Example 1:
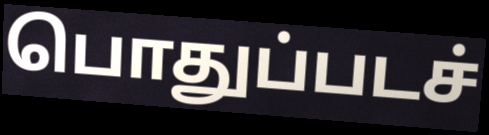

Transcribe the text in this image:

பொதுப்படச்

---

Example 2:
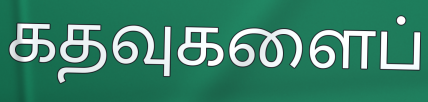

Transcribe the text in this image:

கதவுகளைப்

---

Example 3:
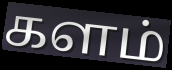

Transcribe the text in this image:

களம்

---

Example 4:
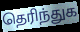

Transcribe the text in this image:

தெரிந்துக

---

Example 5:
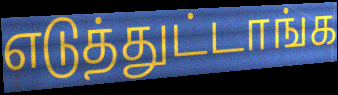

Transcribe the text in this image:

எடுத்துட்டாங்க